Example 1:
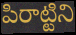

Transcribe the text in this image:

పిరాట్టిని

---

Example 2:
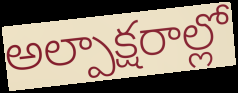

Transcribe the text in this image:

అల్పాక్షరాల్లో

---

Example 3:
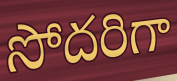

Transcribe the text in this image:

సోదరిగా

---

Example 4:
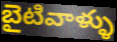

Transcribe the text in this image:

బైటివాళ్ళు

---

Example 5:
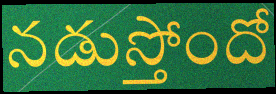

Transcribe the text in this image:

నడుస్తోందో